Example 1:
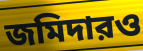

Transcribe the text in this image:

জমিদারও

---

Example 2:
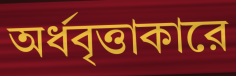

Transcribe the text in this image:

অর্ধবৃত্তাকারে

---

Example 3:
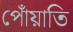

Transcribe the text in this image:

পোঁয়াতি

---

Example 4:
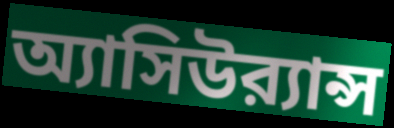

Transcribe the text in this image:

অ্যাসিউর‍্যান্স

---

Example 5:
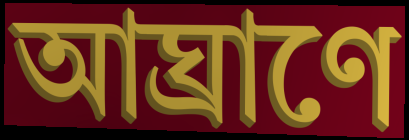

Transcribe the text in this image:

আঘ্রাণে